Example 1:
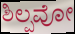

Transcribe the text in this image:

ಶಿಲ್ಪವೋ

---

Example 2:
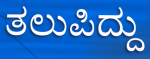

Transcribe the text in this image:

ತಲುಪಿದ್ದು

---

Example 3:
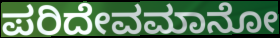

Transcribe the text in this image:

ಪರಿದೇವಮಾನೋ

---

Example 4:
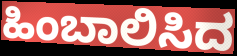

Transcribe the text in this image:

ಹಿಂಬಾಲಿಸಿದ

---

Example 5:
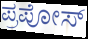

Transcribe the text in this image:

ಪ್ರಪೋಸ್